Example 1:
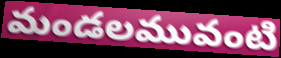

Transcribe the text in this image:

మండలమువంటి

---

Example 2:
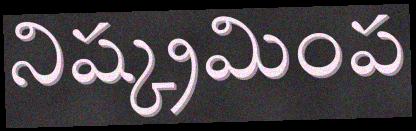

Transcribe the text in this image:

నిష్క్రమింప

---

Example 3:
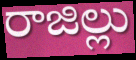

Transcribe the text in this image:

రాజిల్లు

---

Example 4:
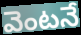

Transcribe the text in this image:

వెంటనే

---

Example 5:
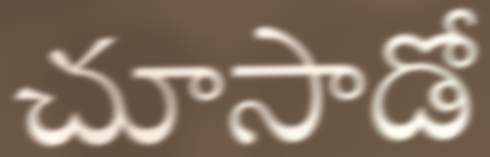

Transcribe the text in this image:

చూసాడో